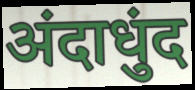
अंदाधुंद